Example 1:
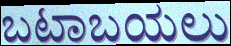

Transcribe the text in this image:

ಬಟಾಬಯಲು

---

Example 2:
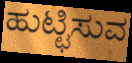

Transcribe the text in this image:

ಹುಟ್ಟಿಸುವ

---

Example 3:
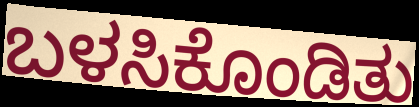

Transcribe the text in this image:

ಬಳಸಿಕೊಂಡಿತು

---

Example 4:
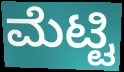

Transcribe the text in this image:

ಮೆಟ್ಟಿ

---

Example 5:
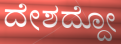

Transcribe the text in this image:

ದೇಶದ್ದೋ